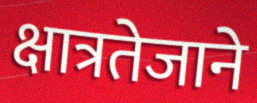
क्षात्रतेजाने